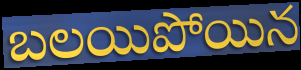
బలయిపోయిన